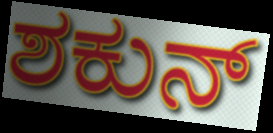
ಶಕುನ್